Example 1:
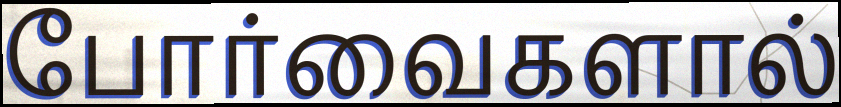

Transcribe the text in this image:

போர்வைகளால்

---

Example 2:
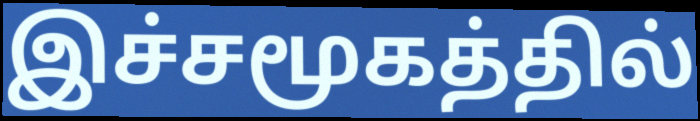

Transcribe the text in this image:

இச்சமூகத்தில்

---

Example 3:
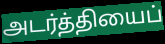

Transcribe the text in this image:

அடர்த்தியைப்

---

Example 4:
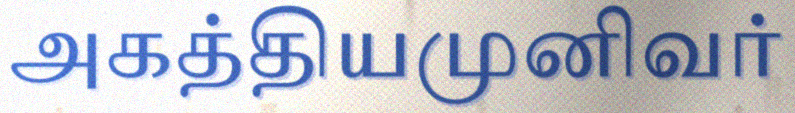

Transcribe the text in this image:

அகத்தியமுனிவர்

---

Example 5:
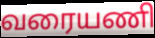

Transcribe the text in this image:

வரையணி